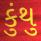
કુંથુ